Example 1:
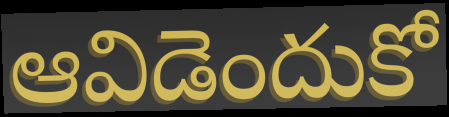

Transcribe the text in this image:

ఆవిడెందుకో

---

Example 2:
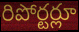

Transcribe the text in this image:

రిపోర్టర్లూ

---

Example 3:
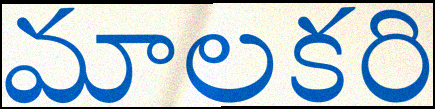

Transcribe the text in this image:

మాలకరి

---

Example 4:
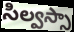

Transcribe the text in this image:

సిల్వస్సా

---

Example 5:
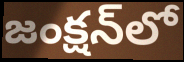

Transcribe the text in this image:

జంక్షన్‌లో